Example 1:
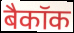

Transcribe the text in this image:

बैकॉक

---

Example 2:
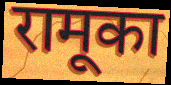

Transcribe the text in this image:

रामूका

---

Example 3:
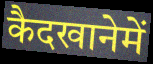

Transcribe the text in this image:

कैदखानेमें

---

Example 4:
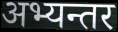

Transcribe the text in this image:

अभ्यन्तर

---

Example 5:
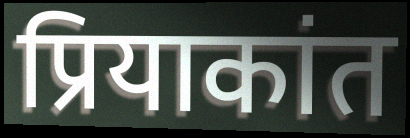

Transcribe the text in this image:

प्रियाकांत